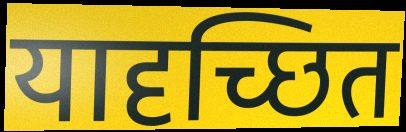
यादृच्छित